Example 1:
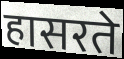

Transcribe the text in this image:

हासरते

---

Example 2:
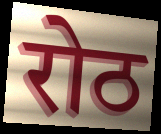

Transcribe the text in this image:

रोठ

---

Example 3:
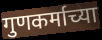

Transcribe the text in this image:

गुणकर्माच्या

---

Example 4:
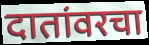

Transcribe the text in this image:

दातांवरचा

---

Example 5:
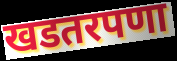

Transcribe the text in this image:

खडतरपणा